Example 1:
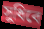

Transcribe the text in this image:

সুধিবে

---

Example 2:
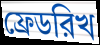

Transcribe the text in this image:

ফ্রেডরিখ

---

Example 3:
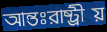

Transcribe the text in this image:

আন্তঃরাষ্ট্রীয়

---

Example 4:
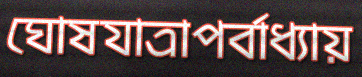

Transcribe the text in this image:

ঘোষযাত্রাপর্বাধ্যায়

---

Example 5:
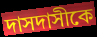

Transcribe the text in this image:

দাসদাসীকে